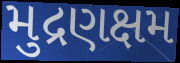
મુદ્રણક્ષમ